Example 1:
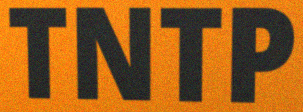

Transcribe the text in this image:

TNTP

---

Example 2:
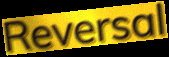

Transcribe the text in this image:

Reversal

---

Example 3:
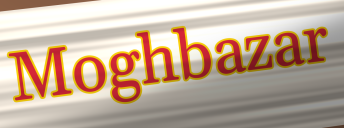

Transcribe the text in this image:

Moghbazar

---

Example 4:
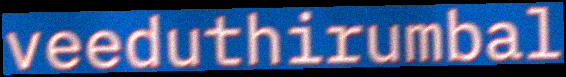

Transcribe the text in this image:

veeduthirumbal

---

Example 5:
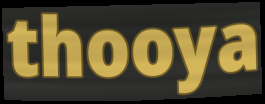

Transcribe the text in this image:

thooya